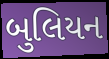
બુલિયન